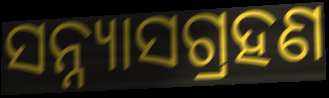
ସନ୍ନ୍ୟାସଗ୍ରହଣ